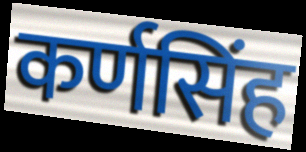
कर्णसिंह